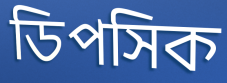
ডিপসিক